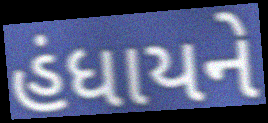
હંધાયને